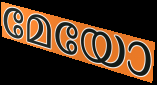
മേയോ